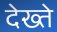
देख्ते